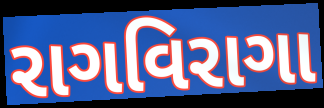
રાગવિરાગા